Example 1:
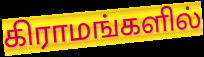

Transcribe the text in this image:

கிராமங்களில்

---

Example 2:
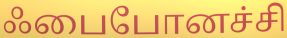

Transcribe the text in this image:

ஃபைபோனச்சி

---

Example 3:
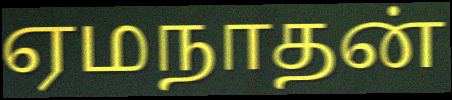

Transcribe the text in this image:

ஏமநாதன்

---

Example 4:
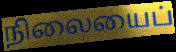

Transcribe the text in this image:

நிலையைப்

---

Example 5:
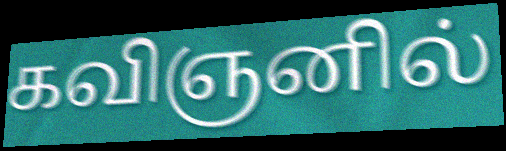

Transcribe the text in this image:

கவிஞனில்